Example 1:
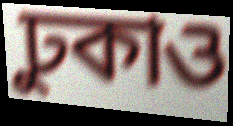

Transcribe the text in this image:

ঢুকাও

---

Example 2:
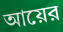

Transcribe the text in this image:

আয়ের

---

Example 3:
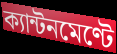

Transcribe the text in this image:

ক্যান্টনমেণ্টে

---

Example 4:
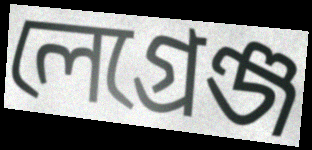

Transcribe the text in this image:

লেগ্রেঞ্জ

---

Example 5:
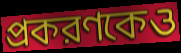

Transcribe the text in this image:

প্রকরণকেও